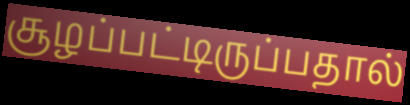
சூழப்பட்டிருப்பதால்